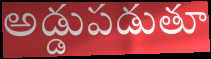
అడ్డుపడుతూ